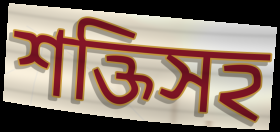
শক্তিসহ